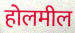
होलमील